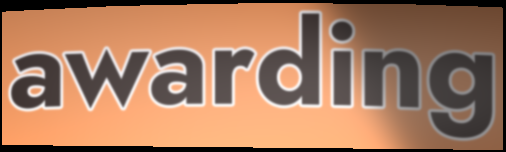
awarding